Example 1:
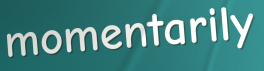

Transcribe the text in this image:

momentarily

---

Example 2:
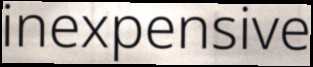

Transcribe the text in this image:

inexpensive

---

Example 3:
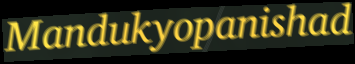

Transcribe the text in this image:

Mandukyopanishad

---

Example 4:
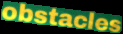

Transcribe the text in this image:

obstacles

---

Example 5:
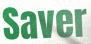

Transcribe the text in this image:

Saver